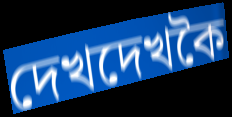
দেখদেখকৈ